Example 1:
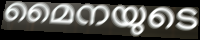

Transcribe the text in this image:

മൈനയുടെ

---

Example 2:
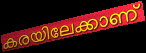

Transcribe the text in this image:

കരയിലേക്കാണ്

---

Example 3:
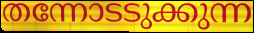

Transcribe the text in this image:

തന്നോടടുക്കുന്ന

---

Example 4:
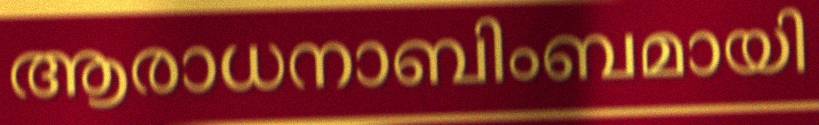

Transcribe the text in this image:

ആരാധനാബിംബമായി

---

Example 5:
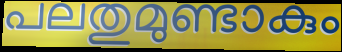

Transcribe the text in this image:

പലതുമുണ്ടാകും